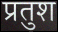
प्रतुश